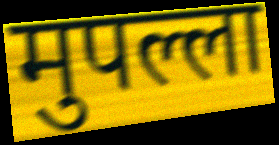
मुपल्ला